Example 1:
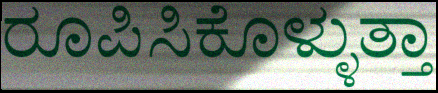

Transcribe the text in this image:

ರೂಪಿಸಿಕೊಳ್ಳುತ್ತಾ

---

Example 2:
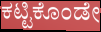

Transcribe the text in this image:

ಕಟ್ಟಿಕೊಂಡೇ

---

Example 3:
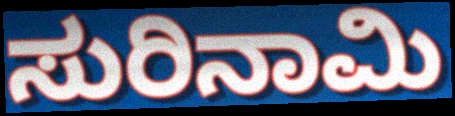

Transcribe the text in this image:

ಸುರಿನಾಮಿ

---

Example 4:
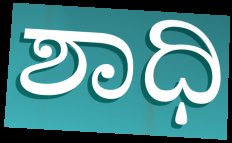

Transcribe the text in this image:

ಶಾಧಿ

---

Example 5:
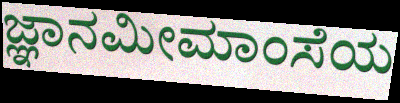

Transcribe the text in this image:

ಜ್ಞಾನಮೀಮಾಂಸೆಯ